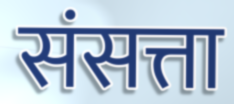
संसत्ता